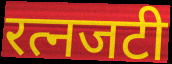
रत्नजटी